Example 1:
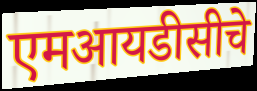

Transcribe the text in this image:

एमआयडीसीचे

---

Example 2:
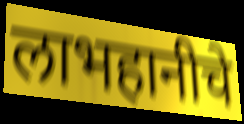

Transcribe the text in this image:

लाभहानीचे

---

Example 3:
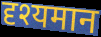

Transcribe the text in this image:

दृश्यमान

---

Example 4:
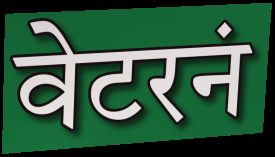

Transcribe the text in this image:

वेटरनं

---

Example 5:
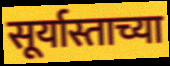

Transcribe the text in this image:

सूर्यास्ताच्या